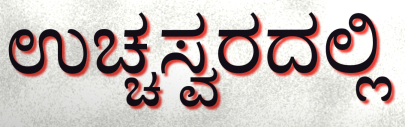
ಉಚ್ಚಸ್ವರದಲ್ಲಿ